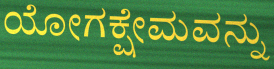
ಯೋಗಕ್ಷೇಮವನ್ನು